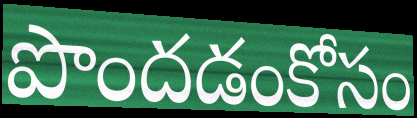
పొందడంకోసం